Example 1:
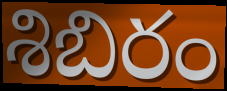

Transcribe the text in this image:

శిబిరం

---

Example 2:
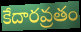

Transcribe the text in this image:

కేదారవ్రతం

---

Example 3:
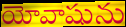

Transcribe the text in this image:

యోవాషును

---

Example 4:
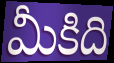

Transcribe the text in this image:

మీకిది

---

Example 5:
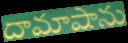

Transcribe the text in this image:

దామాషాను